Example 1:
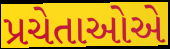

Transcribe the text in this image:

પ્રચેતાઓએ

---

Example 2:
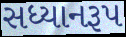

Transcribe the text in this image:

સધ્યાનરૂપ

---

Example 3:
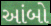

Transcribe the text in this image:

આંબો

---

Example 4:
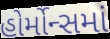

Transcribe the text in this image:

હોર્મોન્સમાં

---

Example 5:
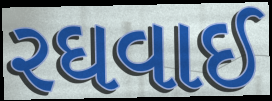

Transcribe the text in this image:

રઘવાઈ